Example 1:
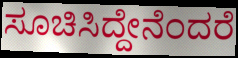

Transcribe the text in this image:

ಸೂಚಿಸಿದ್ದೇನೆಂದರೆ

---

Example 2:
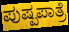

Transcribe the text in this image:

ಪುಷ್ಪಪಾತ್ರೆ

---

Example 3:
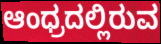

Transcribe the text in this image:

ಆಂಧ್ರದಲ್ಲಿರುವ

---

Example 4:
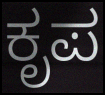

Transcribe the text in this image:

ಕೃಪ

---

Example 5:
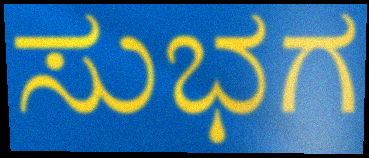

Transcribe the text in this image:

ಸುಭಗ